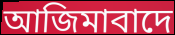
আজিমাবাদে